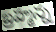
బ్రహ్మన్న